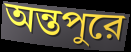
অন্তপুরে